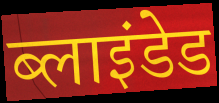
ब्लाइंडेड